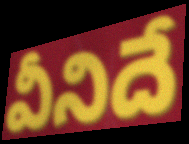
వీనిదే